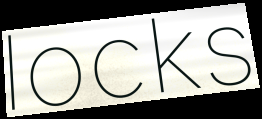
locks